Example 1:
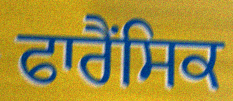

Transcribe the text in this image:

ਫਾਰੈਂਸਿਕ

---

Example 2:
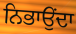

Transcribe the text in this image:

ਨਿਭਾਉਂਦਾ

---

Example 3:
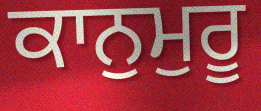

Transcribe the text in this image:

ਕਾਨੁਮੁਰੂ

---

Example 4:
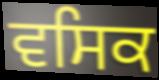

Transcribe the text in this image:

ਵਸਿਕ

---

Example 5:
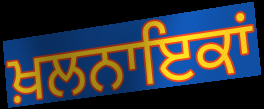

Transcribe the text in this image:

ਖ਼ਲਨਾਇਕਾਂ